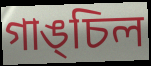
গাঙ্‌চিল